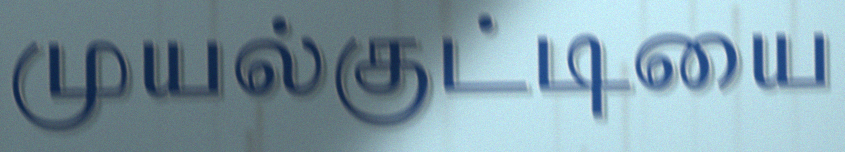
முயல்குட்டியை